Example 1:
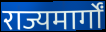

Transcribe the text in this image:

राज्यमार्गों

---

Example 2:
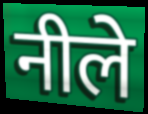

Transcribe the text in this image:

नीले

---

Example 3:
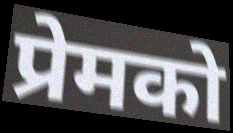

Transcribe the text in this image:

प्रेमको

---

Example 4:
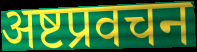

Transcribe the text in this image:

अष्टप्रवचन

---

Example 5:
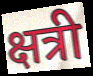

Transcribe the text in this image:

क्षत्री